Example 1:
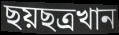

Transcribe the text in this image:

ছয়ছত্রখান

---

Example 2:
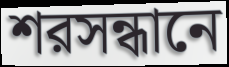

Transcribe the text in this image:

শরসন্ধানে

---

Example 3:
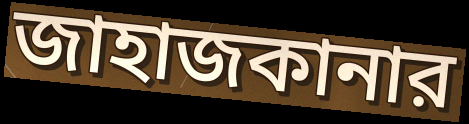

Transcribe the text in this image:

জাহাজকানার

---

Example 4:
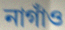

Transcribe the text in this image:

নাগাঁও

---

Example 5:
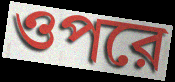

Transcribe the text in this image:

ওপরে